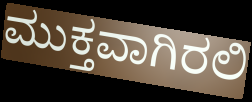
ಮುಕ್ತವಾಗಿರಲಿ